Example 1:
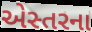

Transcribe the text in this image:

એસ્તરના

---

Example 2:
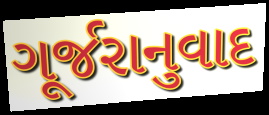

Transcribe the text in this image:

ગૂર્જરાનુવાદ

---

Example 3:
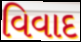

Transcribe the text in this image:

વિવાદ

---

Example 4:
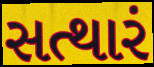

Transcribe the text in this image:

સત્થારં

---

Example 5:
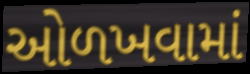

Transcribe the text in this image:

ઓળખવામાં